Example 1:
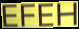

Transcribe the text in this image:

EFEH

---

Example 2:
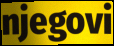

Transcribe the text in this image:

njegovi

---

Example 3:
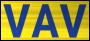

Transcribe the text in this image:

VAV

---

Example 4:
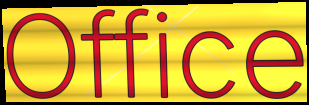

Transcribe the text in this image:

Office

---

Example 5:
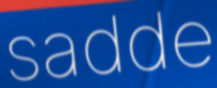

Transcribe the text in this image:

sadde